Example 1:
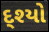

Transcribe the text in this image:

દ્શ્યો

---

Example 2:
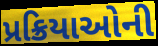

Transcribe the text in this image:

પ્રક્રિયાઓની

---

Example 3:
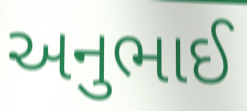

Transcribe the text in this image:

અનુભાઈ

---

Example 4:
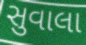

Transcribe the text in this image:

સુવાલા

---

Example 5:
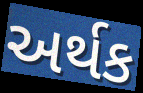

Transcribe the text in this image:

અર્થક